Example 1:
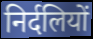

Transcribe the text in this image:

निर्दलियों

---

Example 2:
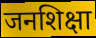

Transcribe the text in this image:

जनशिक्षा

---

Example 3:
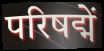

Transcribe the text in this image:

परिषद्में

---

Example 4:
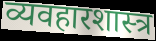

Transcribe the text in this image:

व्यवहारशास्त्र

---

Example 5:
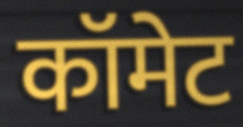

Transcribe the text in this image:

कॉमेट